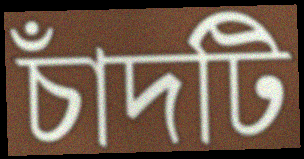
চাঁদটি